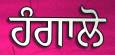
ਹੰਗਾਲੋ